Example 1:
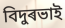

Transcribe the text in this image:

বিদুৰভাই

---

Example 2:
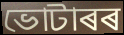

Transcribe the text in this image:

ভোটাৰৰ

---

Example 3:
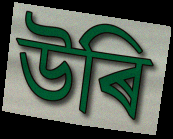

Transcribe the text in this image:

উৰি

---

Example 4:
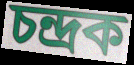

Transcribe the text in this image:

চন্দ্ৰক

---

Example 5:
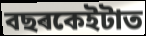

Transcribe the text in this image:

বছৰকেইটাত